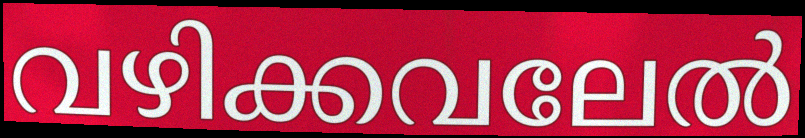
വഴിക്കവലേൽ